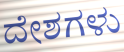
ದೇಶಗಳು